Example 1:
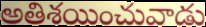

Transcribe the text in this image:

అతిశయించువాడు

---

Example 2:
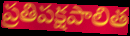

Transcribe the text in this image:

ప్రతిపక్షపాలిత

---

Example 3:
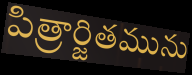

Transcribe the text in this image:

పిత్రార్జితమును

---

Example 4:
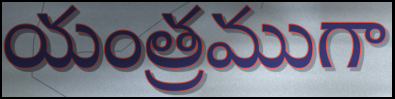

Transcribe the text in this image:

యంత్రముగా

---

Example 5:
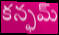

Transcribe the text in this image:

కన్ఫమ్